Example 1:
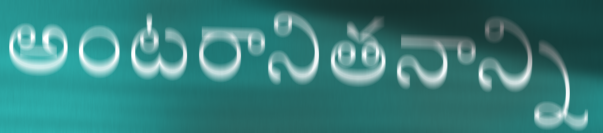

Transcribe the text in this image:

అంటరానితనాన్ని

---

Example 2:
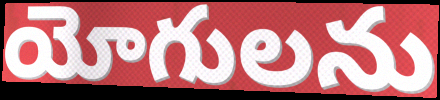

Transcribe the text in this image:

యోగులను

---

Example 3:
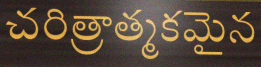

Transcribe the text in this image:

చరిత్రాత్మకమైన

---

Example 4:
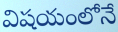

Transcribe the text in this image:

విషయంలోనే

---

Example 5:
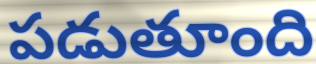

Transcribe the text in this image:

పడుతూంది